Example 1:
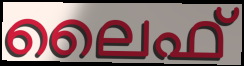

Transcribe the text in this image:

ലൈഫ്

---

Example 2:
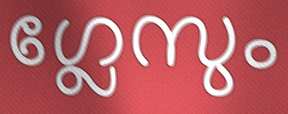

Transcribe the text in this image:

ഗ്ലേസും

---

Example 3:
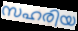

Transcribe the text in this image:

സഹരിയ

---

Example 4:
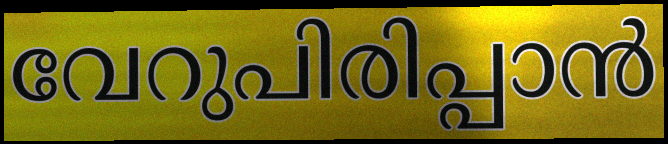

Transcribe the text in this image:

വേറുപിരിപ്പാൻ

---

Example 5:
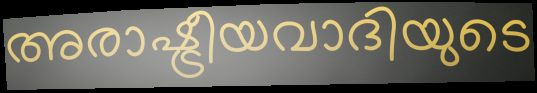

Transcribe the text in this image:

അരാഷ്ട്രീയവാദിയുടെ